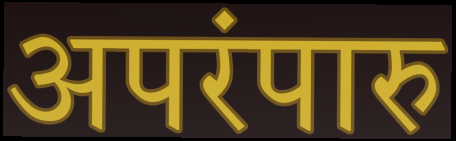
अपरंपारु